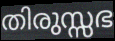
തിരുസ്സഭ